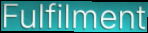
Fulfilment